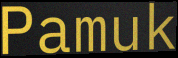
Pamuk